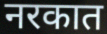
नरकात